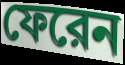
ফেরেন